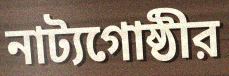
নাট্যগোষ্ঠীর